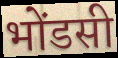
भोंडसी